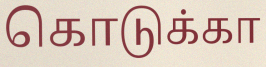
கொடுக்கா